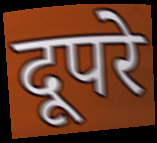
दूपरे